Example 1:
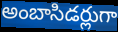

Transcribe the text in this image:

అంబాసిడర్లుగా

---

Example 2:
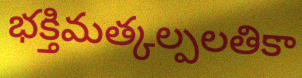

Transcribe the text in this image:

భక్తిమత్కల్పలతికా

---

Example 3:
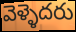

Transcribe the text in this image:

వెళ్ళెదరు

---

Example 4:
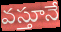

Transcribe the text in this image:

వస్తూనే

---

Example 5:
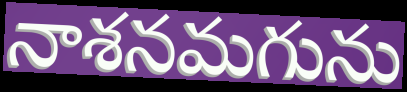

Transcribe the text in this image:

నాశనమగును